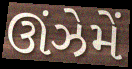
ઊંઝેમેં